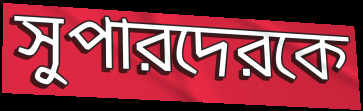
সুপারদেরকে